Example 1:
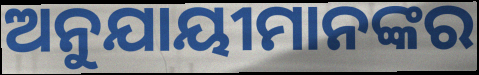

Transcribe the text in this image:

ଅନୁଯାୟୀମାନଙ୍କର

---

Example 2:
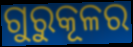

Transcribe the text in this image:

ଗୁରୁକୂଳର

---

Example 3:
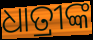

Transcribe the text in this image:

ଧାତ୍ରୀଙ୍କ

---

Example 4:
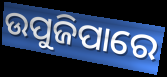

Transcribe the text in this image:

ଉପୁଜିପାରେ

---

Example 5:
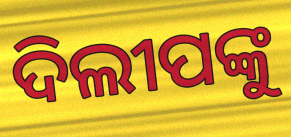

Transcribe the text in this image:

ଦିଲୀପଙ୍କୁ